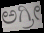
ಅಗ್ರೀ